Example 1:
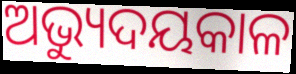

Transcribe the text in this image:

ଅଭ୍ୟୁଦୟକାଳ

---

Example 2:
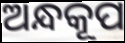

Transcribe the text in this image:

ଅନ୍ଧକୂପ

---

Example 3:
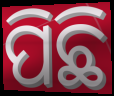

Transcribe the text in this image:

ପିଛି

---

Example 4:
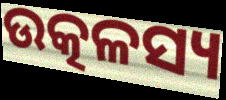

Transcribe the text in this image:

ଉତ୍କଳସ୍ୟ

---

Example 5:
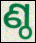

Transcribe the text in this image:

ଣ୍ଠ